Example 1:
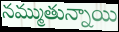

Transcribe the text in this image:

నమ్ముతున్నాయి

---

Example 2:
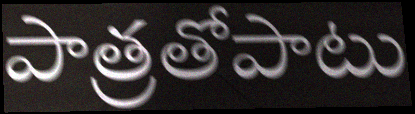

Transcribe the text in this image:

పాత్రతోపాటు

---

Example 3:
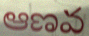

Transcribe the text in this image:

ఆణవ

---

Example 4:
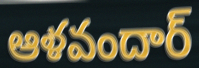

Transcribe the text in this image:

ఆళవందార్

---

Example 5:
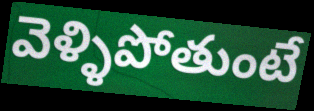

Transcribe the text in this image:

వెళ్ళిపోతుంటే